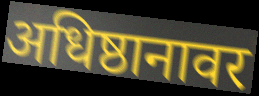
अधिष्ठानावर